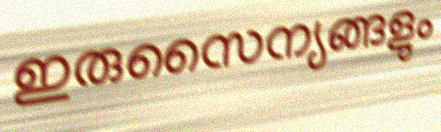
ഇരുസൈന്യങ്ങളും